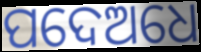
ପଦେଅଧେ